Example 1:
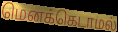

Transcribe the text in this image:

மெனக்கெடாமல்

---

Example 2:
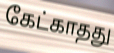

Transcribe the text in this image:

கேட்காதது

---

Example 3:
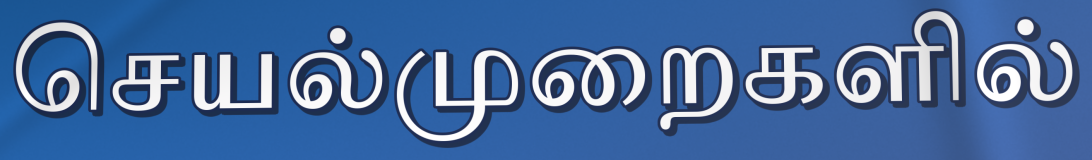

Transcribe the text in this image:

செயல்முறைகளில்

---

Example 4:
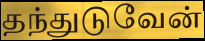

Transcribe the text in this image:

தந்துடுவேன்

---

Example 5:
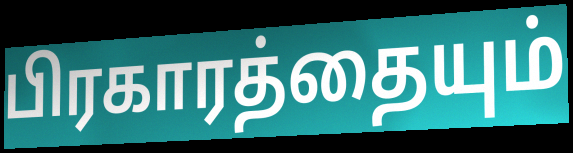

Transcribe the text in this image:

பிரகாரத்தையும்